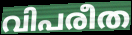
വിപരീത